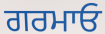
ਗਰਮਾਓ